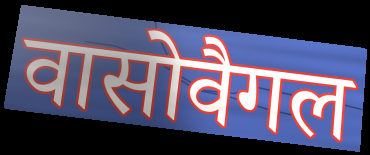
वासोवैगल